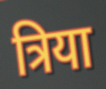
त्रिया